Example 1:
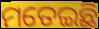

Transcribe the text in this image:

ମତେଇଛି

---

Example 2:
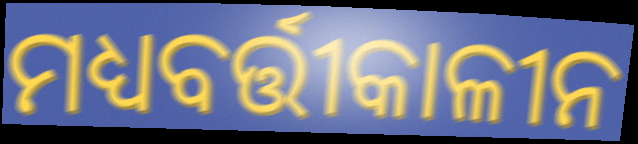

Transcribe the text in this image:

ମଧ୍ୟବର୍ତ୍ତୀକାଳୀନ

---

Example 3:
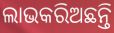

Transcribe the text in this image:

ଲାଭକରିଅଛନ୍ତି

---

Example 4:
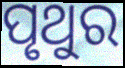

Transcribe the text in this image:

ପୃଥୁର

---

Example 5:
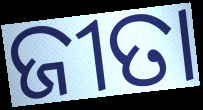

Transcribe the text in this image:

ଜୀତା